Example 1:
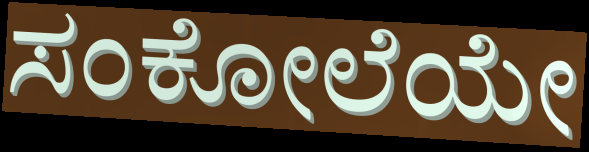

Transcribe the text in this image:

ಸಂಕೋಲೆಯೇ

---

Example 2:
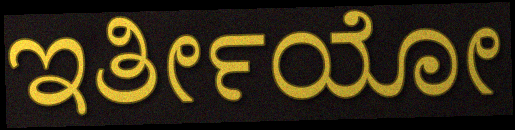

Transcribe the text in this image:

ಇರ್ತೀಯೋ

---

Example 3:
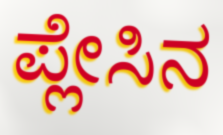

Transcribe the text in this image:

ಪ್ಲೇಸಿನ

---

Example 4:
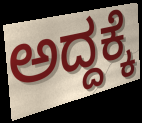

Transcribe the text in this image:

ಅದ್ದಕ್ಕೆ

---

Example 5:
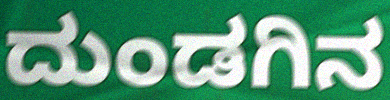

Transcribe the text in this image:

ದುಂಡಗಿನ